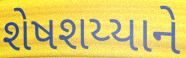
શેષશય્યાને